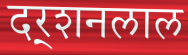
दर्शनलाल